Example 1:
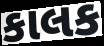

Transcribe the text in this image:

કાલક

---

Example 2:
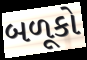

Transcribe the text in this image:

બળૂકો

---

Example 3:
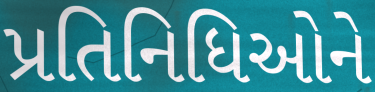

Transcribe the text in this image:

પ્રતિનિધિઓને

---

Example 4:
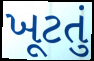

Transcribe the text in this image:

ખૂટતું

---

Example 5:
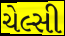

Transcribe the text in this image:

ચેલ્સી